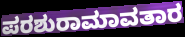
ಪರಶುರಾಮಾವತಾರ